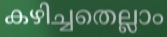
കഴിച്ചതെല്ലാം